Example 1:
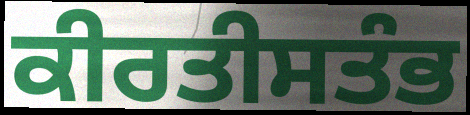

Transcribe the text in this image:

ਕੀਰਤੀਸਤੰਭ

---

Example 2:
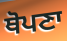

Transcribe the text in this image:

ਥੋਪਣਾ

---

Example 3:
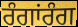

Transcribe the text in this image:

ਰੰਗਾਂਰੰਗ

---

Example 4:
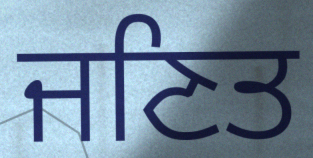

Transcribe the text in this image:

ਜਣਿਤ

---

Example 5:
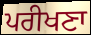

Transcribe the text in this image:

ਪਰੀਖਣਾ